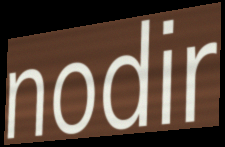
nodir